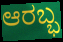
ಆರಬ್ಭ